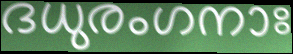
ദധുരംഗനാഃ